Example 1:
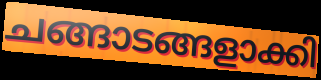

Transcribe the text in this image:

ചങ്ങാടങ്ങളാക്കി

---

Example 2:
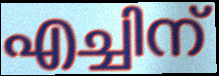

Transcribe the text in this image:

എച്ചിന്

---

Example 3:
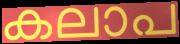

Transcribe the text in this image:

കലാപ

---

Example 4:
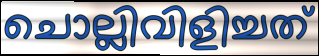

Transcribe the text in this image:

ചൊല്ലിവിളിച്ചത്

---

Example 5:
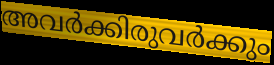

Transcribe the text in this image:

അവർക്കിരുവർക്കും